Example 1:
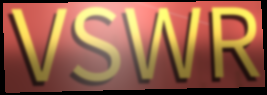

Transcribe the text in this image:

VSWR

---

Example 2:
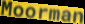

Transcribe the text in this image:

Moorman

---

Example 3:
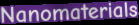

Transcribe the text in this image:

Nanomaterials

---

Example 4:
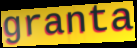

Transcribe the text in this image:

granta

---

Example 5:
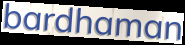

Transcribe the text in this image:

bardhaman